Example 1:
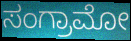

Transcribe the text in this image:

ಸಂಗ್ರಾಮೋ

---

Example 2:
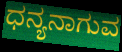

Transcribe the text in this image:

ಧನ್ಯನಾಗುವ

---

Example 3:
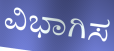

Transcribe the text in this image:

ವಿಭಾಗಿಸ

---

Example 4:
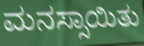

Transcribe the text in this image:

ಮನಸ್ಸಾಯಿತು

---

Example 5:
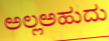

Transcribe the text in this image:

ಅಲ್ಲಅಹುದು